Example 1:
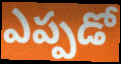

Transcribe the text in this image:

ఎప్పడో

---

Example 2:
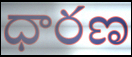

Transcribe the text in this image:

ధారణ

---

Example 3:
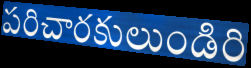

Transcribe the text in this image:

పరిచారకులుండిరి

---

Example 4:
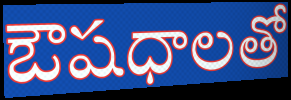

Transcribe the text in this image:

ఔషధాలతో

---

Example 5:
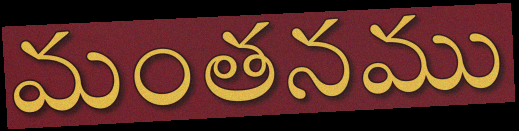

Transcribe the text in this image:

మంతనము